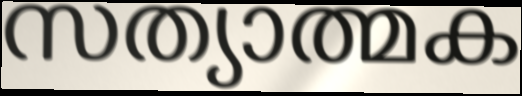
സത്യാത്മക